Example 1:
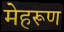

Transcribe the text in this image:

मेहरूण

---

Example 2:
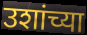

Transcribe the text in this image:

उशांच्या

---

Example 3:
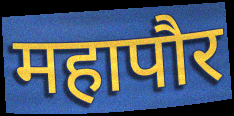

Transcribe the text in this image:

महापौर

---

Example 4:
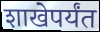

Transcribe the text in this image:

शाखेपर्यंत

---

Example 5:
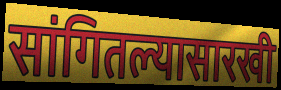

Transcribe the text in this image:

सांगितल्यासारखी